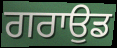
ਗਰਾਉਡ